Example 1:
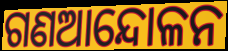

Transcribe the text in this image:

ଗଣଆନ୍ଦୋଳନ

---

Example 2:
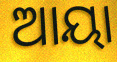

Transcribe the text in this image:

ଆୟା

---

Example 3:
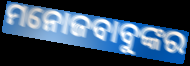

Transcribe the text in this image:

ମନୋଜବାବୁଙ୍କର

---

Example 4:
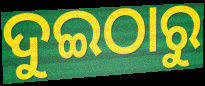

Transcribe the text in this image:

ଦୁଇଠାରୁ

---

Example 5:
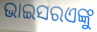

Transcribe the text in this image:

ଭାଇସରଏଙ୍କୁ